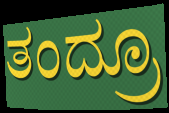
ತಂದ್ರೂ